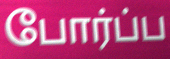
போர்ப்ப